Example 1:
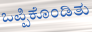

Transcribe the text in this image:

ಒಪ್ಪಿಕೊಂಡಿತು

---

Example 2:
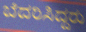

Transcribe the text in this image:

ಬೆದರಿಸಿದ್ದರು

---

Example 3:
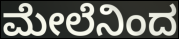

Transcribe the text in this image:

ಮೇಲೆನಿಂದ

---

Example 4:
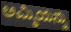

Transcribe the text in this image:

ಅಮ್ಮಿಯನ್ನು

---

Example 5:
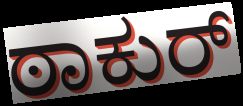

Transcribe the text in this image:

ಠಾಕುರ್